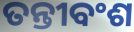
ତନ୍ତୀବଂଶ